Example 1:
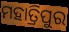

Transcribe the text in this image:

ମହାତ୍ରିପୁର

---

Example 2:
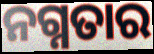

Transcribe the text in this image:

ନଗ୍ନତାର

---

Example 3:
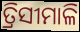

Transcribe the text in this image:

ତ୍ରିସୀମାଳି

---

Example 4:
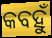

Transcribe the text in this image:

କବହୁଁ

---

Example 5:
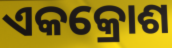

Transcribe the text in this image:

ଏକକ୍ରୋଶ